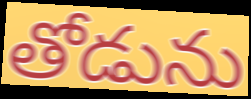
తోడును